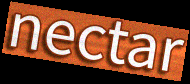
nectar